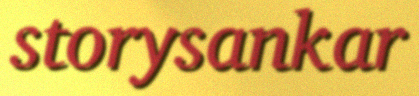
storysankar